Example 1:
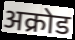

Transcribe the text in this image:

अक्रोड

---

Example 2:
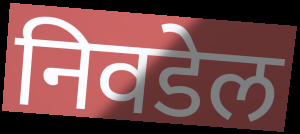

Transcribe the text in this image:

निवडेल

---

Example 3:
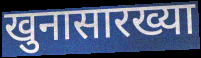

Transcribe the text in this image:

खुनासारख्या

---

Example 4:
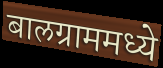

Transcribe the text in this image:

बालग्राममध्ये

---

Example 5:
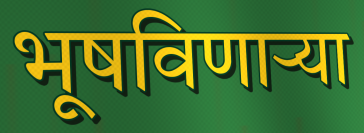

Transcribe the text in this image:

भूषविणार्‍या